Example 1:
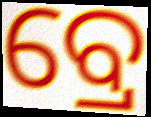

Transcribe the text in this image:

ବ୍ରେ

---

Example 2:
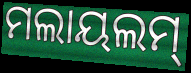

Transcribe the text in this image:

ମଲାୟଲମ୍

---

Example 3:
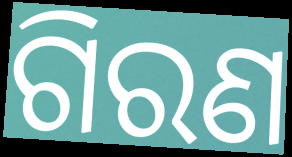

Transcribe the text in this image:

ଗିରଣ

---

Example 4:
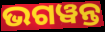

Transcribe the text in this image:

ଭଗୱନ୍ତ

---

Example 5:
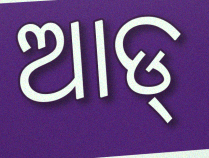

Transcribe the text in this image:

ଆଡ୍